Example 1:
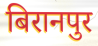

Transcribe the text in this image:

बिरानपुर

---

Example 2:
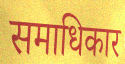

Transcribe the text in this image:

समाधिकार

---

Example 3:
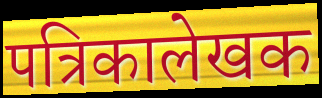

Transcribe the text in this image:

पत्रिकालेखक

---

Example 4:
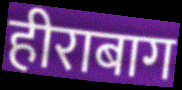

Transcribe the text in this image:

हीराबाग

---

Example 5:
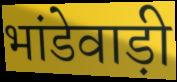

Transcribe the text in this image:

भांडेवाड़ी